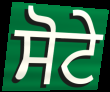
ਸੋਟੇ